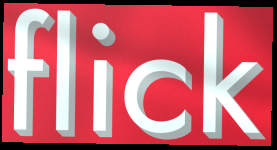
flick